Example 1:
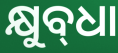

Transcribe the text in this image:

କ୍ଷୁବ୍‌ଧା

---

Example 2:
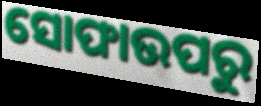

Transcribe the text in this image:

ସୋଫାଉପରୁ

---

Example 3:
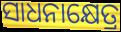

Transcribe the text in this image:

ସାଧନାକ୍ଷେତ୍ର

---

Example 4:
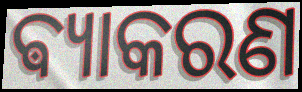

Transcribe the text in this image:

ଵ୍ଯାକରଣ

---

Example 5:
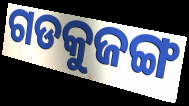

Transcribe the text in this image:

ଗଡକୁଜଙ୍ଗ